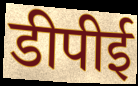
डीपीई